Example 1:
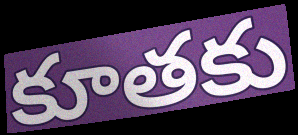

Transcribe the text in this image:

కూతకు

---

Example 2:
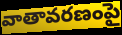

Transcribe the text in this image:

వాతావరణంపై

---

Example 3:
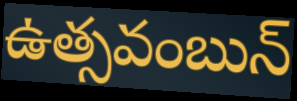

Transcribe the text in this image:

ఉత్సవంబున్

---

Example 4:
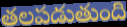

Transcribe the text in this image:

తలపడుతుంది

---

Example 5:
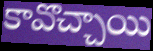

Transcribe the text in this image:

కావొచ్చాయి